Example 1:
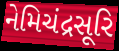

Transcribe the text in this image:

નેમિચંદ્રસૂરિ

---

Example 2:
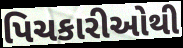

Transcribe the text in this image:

પિચકારીઓથી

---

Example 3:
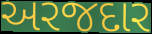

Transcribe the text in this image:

અરજદાર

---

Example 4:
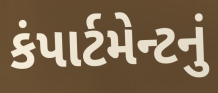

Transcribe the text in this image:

કંપાર્ટમેન્ટનું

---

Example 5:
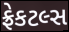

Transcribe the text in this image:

ફ્રેકટલ્સ